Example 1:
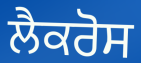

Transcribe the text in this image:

ਲੈਕਰੋਸ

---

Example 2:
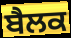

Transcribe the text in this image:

ਬੈਲਕ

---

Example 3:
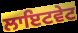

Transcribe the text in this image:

ਲਾਇਟਵੇਟ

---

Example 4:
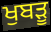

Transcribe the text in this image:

ਖੁਬੜੂ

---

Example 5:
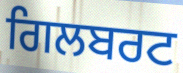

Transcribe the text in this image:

ਗਿਲਬਰਟ